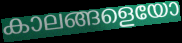
കാലങ്ങളെയോ